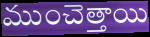
ముంచెత్తాయి